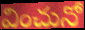
వించునో